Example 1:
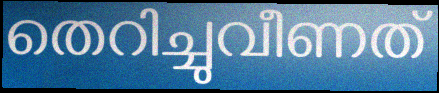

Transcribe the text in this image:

തെറിച്ചുവീണത്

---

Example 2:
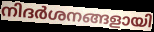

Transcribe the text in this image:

നിദർശനങ്ങളായി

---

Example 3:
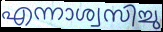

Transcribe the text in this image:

എന്നാശ്വസിച്ചു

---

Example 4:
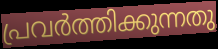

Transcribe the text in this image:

പ്രവർത്തിക്കുന്നതു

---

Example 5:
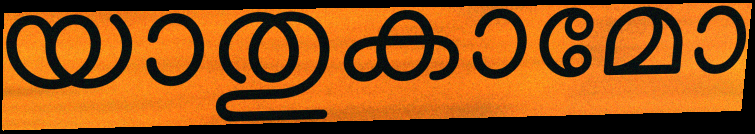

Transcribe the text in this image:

യാതുകാമോ